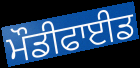
ਮੌਡੀਫਾਈਡ